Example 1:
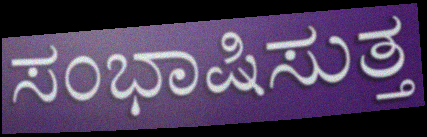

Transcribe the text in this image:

ಸಂಭಾಷಿಸುತ್ತ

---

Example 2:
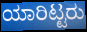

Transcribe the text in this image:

ಯಾರಿಟ್ಟರು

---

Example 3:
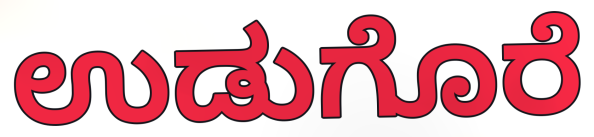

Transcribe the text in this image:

ಉಡುಗೊರೆ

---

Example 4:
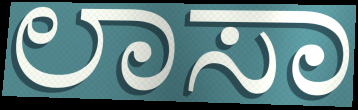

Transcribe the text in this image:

ಲಾಸಾ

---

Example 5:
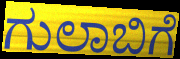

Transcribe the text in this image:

ಗುಲಾಬಿಗೆ